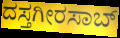
ದಸ್ತಗೀರಸಾಬ್